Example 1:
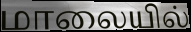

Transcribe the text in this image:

மாலையில்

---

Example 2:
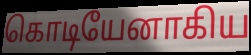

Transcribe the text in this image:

கொடியேனாகிய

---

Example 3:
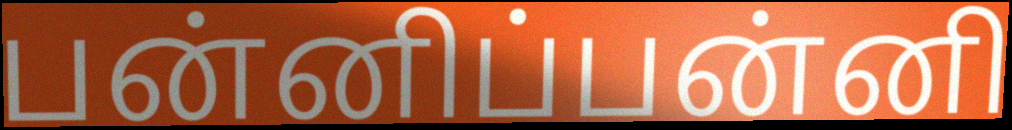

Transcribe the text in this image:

பன்னிப்பன்னி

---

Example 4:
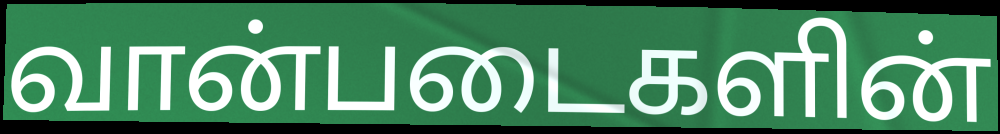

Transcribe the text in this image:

வான்படைகளின்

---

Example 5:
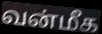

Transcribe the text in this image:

வன்மீக